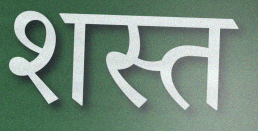
शस्त